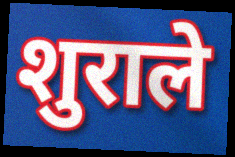
शुराले